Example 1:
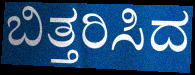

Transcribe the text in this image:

ಬಿತ್ತರಿಸಿದ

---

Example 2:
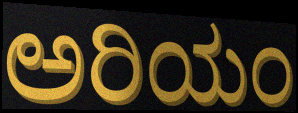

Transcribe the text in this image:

ಅರಿಯಂ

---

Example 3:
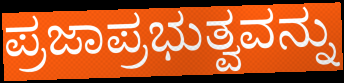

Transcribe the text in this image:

ಪ್ರಜಾಪ್ರಭುತ್ವವನ್ನು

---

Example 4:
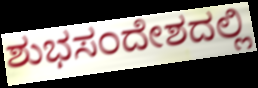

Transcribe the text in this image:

ಶುಭಸಂದೇಶದಲ್ಲಿ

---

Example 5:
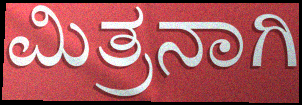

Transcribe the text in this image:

ಮಿತ್ರನಾಗಿ